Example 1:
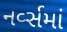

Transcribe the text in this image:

નર્વ્સમાં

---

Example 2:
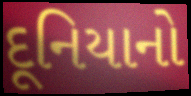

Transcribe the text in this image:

દૂનિયાનો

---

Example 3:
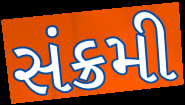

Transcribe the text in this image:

સંક્રમી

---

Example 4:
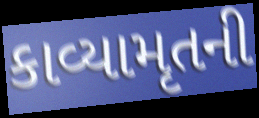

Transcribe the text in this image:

કાવ્યામૃતની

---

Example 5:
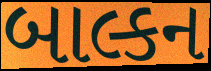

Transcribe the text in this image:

બાલ્કન